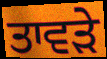
ਤਾਵੜੇ